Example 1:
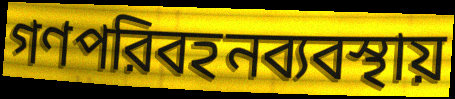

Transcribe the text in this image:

গণপরিবহনব্যবস্থায়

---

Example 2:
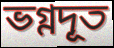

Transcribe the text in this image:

ভগ্নদূত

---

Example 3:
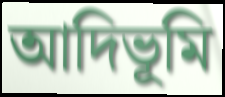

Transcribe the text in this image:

আদিভূমি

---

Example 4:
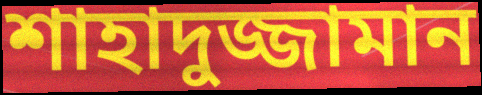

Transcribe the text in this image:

শাহাদুজ্জামান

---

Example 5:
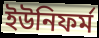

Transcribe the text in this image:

ইউনিফর্ম